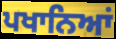
ਪਖਾਨਿਆਂ